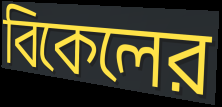
বিকেলের